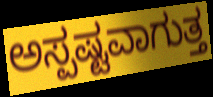
ಅಸ್ಪಷ್ಟವಾಗುತ್ತ